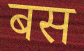
बस